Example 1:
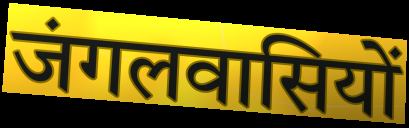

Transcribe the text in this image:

जंगलवासियों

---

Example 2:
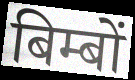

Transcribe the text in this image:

बिम्बों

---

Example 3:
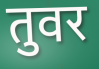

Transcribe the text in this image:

तुवर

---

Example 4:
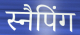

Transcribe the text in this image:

स्नैपिंग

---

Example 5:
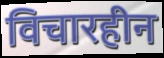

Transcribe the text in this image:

विचारहीन